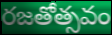
రజతోత్సవం